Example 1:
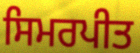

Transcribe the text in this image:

ਸਿਮਰਪੀਤ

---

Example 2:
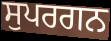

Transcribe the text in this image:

ਸੁਪਰਗਨ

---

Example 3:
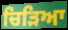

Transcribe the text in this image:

ਚਿੜਿਆ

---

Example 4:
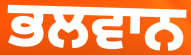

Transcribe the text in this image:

ਭਲਵਾਨ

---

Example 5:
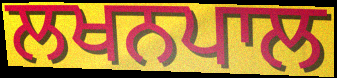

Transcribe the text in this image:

ਲਖਨਪਾਲ